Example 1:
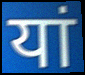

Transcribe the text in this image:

यां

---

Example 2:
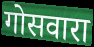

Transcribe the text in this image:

गोसवारा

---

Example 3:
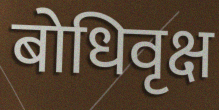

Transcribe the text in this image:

बोधिवृक्ष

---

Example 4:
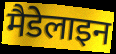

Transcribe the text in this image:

मैडेलाइन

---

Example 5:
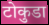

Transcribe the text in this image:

टोकुडा